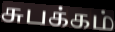
சுபக்கம்